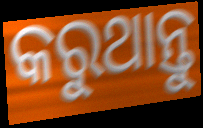
କରୁଥାନ୍ତୁ